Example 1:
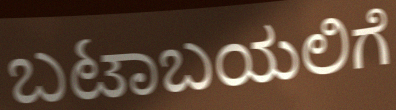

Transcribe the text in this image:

ಬಟಾಬಯಲಿಗೆ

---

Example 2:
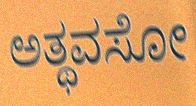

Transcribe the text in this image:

ಅತ್ಥವಸೋ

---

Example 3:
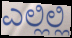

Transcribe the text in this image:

ಎಲ್ಲಿಲ್ಲಿ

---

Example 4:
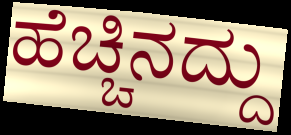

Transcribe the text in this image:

ಹೆಚ್ಚಿನದ್ದು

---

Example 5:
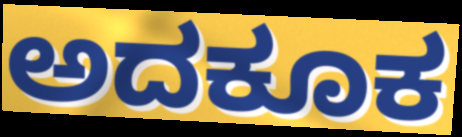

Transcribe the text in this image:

ಅದಕೂಕ